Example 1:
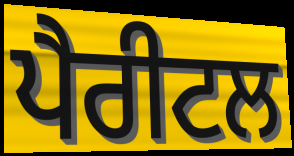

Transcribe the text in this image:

ਪੈਰੀਟਲ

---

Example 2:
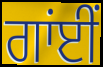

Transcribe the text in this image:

ਗਾਂਈਂ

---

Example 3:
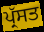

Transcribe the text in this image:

ਪ੍ਰੱਸਤ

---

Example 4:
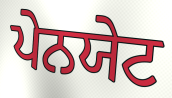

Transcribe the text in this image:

ਪੇਨਯੇਟ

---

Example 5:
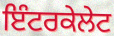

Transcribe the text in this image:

ਇੰਟਰਕੇਲੇਟ